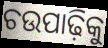
ଚଉପାଢ଼ିକୁ